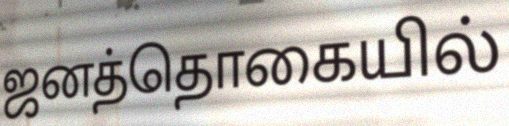
ஜனத்தொகையில்